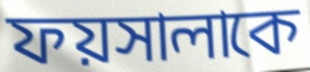
ফয়সালাকে